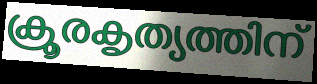
ക്രൂരകൃത്യത്തിന്